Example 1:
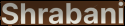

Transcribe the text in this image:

Shrabani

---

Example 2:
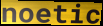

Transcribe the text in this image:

noetic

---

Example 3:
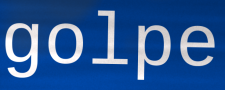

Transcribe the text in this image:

golpe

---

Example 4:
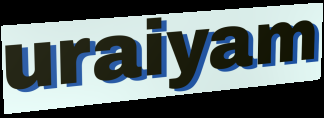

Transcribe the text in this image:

uraiyam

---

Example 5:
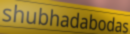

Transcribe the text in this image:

shubhadabodas